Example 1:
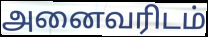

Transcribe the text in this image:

அனைவரிடம்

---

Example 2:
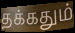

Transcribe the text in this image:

தக்கதும்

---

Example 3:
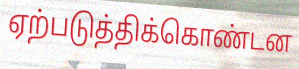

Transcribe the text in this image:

ஏற்படுத்திக்கொண்டன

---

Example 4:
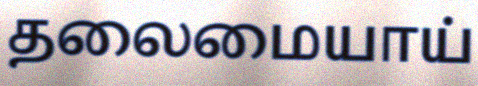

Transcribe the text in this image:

தலைமையாய்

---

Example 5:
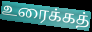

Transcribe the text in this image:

உரைக்கத்